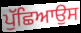
ਪੁੱਛਿਆਉਸ